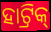
ହାଟ୍ରିକ୍